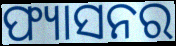
ଫ୍ୟାସନର